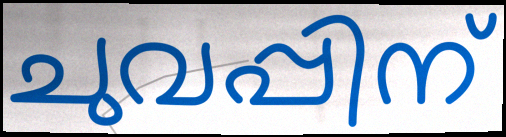
ചുവപ്പിന്